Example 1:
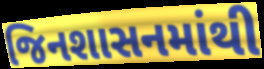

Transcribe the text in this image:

જિનશાસનમાંથી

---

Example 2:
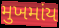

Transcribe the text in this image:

મુખમાંય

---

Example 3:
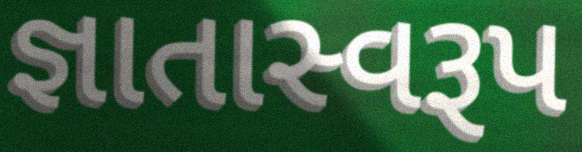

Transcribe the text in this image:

જ્ઞાતાસ્વરૂપ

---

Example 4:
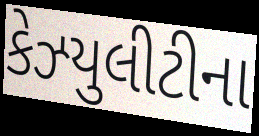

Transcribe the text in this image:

કેઝ્યુલીટીના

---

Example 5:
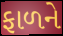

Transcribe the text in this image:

ફાળને